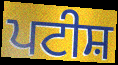
ਪਟੀਸ਼